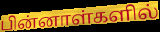
பின்னாள்களில்